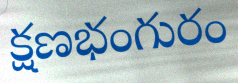
క్షణభంగురం